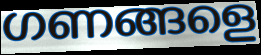
ഗണങ്ങളെ